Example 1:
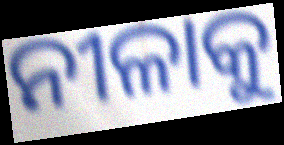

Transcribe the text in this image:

ନୀଳାକୁ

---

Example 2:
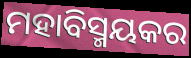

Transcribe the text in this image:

ମହାବିସ୍ମୟକର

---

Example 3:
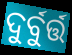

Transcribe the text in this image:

ଦୁର୍ବୁର୍ତ୍ତ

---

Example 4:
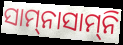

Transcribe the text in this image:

ସାମ୍‍ନାସାମ୍‍ନି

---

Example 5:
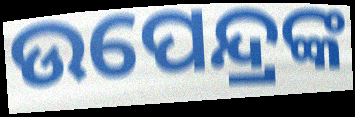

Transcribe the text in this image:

ଉପେନ୍ଦ୍ରଙ୍କ